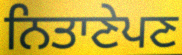
ਨਿਤਾਣੇਪਣ